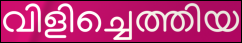
വിളിച്ചെത്തിയ